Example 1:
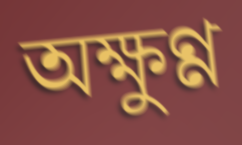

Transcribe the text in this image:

অক্ষুণ্ণ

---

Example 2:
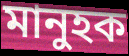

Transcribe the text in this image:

মানুহক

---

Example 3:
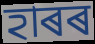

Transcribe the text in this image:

হাৰৰ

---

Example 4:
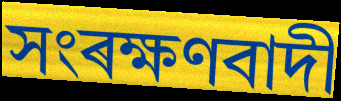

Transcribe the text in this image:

সংৰক্ষণবাদী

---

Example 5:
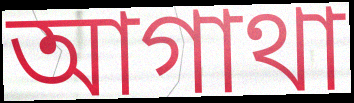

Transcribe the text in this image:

আগাথা